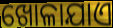
ଖୋଳାଯାଏ